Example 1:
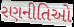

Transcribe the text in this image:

રણનીતિઓ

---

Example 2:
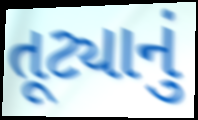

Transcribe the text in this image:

તૂટ્યાનું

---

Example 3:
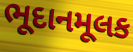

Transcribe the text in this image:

ભૂદાનમૂલક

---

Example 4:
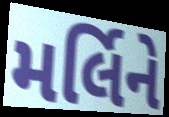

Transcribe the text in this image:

મર્લિને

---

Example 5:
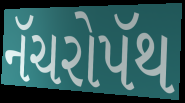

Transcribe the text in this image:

નૅચરોપૅથ